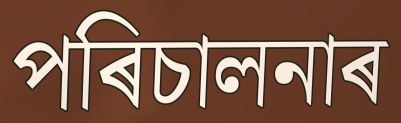
পৰিচালনাৰ